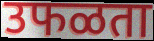
उफळता